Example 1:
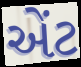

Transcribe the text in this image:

એંટ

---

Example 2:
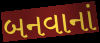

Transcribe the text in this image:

બનવાનાં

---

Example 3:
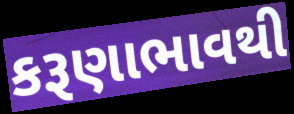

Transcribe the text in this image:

કરૂણાભાવથી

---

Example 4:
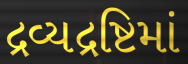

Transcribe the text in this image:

દ્રવ્યદ્રષ્ટિમાં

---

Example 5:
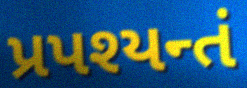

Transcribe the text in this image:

પ્રપશ્યન્તં